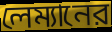
লেম্যানের